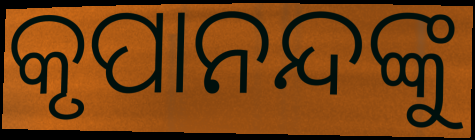
କୃପାନନ୍ଦଙ୍କୁ